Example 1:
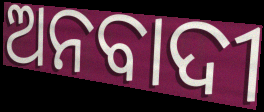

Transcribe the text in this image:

ଅନବାଦୀ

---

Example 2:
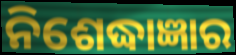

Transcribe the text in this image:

ନିଶେଦ୍ଧାଜ୍ଞାର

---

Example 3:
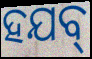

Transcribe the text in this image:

ହଯବ୍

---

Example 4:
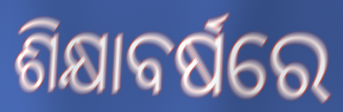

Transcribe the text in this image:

ଶିକ୍ଷାବର୍ଷରେ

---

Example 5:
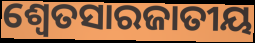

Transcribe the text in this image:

ଶ୍ଵେତସାରଜାତୀୟ